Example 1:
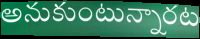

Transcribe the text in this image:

అనుకుంటున్నారట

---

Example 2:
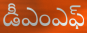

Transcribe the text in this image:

డీఎంఎఫ్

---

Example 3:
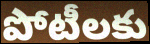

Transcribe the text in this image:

పోటీలకు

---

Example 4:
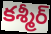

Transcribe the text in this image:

కశ్మీర్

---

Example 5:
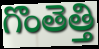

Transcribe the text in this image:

గొంతెత్తి